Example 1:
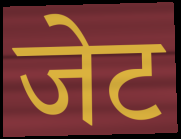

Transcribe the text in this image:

जेट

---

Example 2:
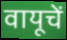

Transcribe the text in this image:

वायूचें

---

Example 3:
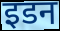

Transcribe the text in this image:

इडन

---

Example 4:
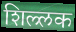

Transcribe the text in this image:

शिल्लक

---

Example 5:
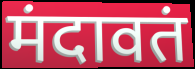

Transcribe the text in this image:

मंदावतं